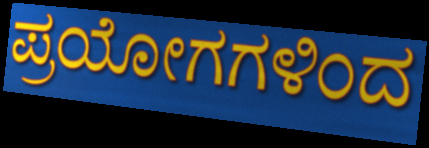
ಪ್ರಯೋಗಗಳಿಂದ